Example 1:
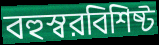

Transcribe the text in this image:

বহুস্বরবিশিষ্ট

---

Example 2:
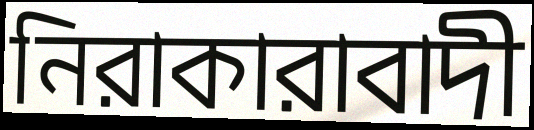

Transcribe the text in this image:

নিরাকারাবাদী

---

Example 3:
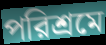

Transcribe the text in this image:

পরিশ্রমে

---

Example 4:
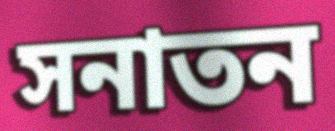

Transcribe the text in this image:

সনাতন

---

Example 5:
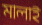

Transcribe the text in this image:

মালাই